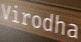
Virodha